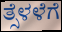
ತ್ಸೆಳಳೆಗೆ